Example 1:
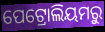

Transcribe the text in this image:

ପେଟ୍ରୋଲିୟମରୁ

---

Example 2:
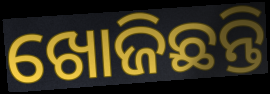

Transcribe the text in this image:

ଖୋଜିଛନ୍ତି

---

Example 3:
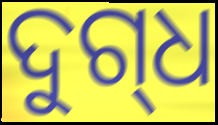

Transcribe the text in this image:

ଦୁଗ୍‌ଧ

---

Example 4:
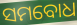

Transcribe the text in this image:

ସମବୋଧ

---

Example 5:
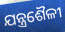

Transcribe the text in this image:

ଯନ୍ତ୍ରଶୈଳୀ